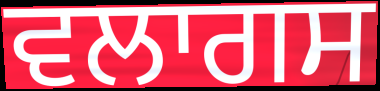
ਵਲਾਗਸ